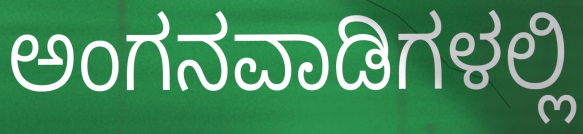
ಅಂಗನವಾಡಿಗಳಲ್ಲಿ